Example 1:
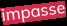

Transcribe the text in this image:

impasse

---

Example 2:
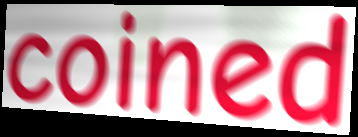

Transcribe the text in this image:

coined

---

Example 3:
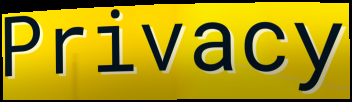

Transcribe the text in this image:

Privacy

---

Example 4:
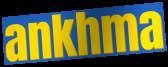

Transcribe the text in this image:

ankhma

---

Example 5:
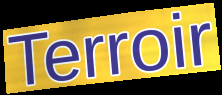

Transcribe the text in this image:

Terroir